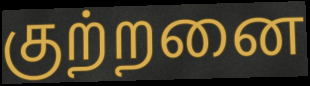
குற்றனை